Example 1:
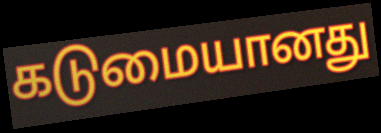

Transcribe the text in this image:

கடுமையானது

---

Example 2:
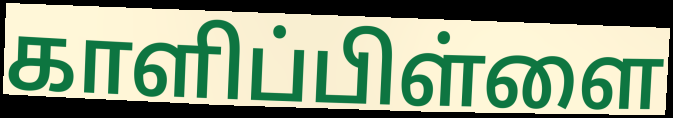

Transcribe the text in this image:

காளிப்பிள்ளை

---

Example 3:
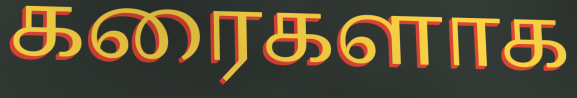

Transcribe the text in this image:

கரைகளாக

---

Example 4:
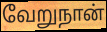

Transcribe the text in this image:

வேறுநான்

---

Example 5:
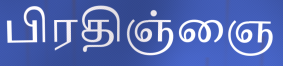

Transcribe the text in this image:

பிரதிஞ்ஞை